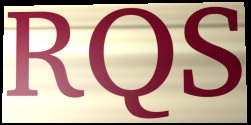
RQS